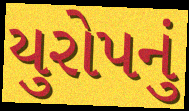
યુરોપનું